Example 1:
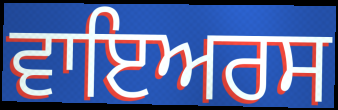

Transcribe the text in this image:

ਵਾਇਅਰਸ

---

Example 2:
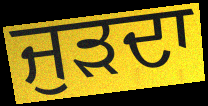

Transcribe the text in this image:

ਜੁੜਦਾ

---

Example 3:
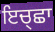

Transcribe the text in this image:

ਇਚ੍ਛਾ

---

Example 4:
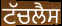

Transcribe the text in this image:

ਟੱਚਲੈਸ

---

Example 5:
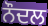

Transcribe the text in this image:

ਨੌਦਲ